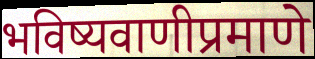
भविष्यवाणीप्रमाणे